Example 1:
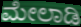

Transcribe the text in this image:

ಮೇಲಾಡಿ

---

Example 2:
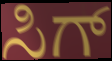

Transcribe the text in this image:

ಸಿಗ್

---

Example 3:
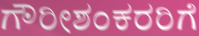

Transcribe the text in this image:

ಗೌರೀಶಂಕರರಿಗೆ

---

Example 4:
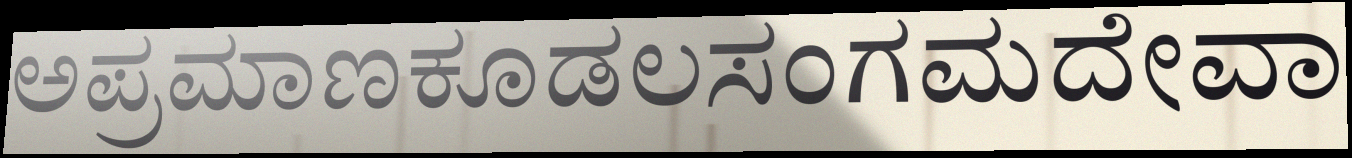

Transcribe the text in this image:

ಅಪ್ರಮಾಣಕೂಡಲಸಂಗಮದೇವಾ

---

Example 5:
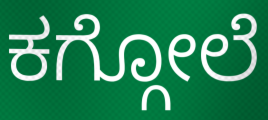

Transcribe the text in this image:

ಕಗ್ಗೋಲೆ